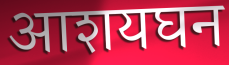
आशयघन